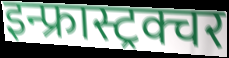
इन्फ्रास्ट्रक्चर